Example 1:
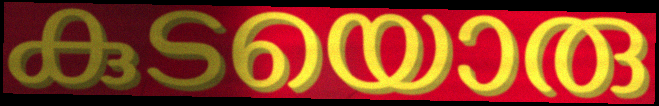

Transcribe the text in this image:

കുടയൊരു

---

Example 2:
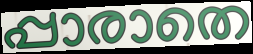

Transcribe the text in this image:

പ്പാരാതെ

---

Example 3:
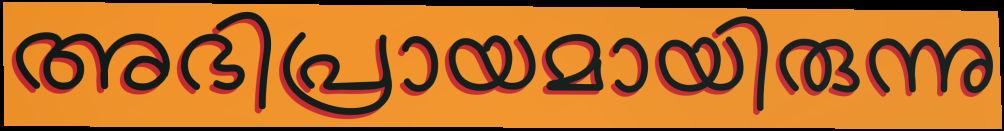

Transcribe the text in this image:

അഭിപ്രായമായിരുന്നു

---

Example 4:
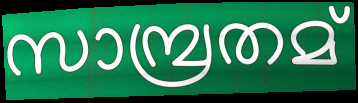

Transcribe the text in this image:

സാമ്പ്രതമ്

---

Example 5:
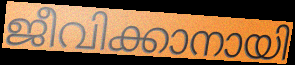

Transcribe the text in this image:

ജീവിക്കാനായി